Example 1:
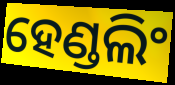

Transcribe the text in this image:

ହେଣ୍ଡଲିଂ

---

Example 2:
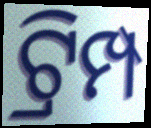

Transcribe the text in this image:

ଟ୍ରିମ୍ପ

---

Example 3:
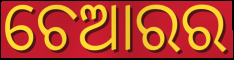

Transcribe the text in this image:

ଚେଆରର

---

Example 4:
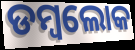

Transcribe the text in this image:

ଡମ୍ବଲୋକ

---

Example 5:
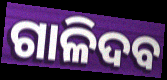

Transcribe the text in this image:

ଗାଳିଦବ